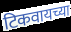
टिकवायच्या